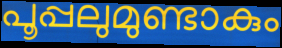
പൂപ്പലുമുണ്ടാകും